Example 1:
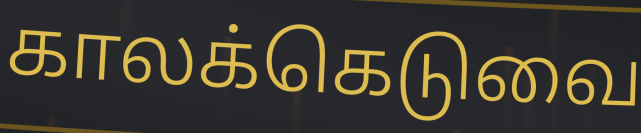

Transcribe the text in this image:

காலக்கெடுவை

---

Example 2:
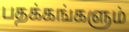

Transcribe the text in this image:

பதக்கங்களும்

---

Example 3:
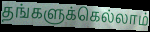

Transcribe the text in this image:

தங்களுக்கெல்லாம்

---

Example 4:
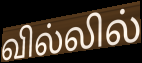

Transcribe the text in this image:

வில்லில்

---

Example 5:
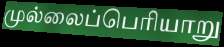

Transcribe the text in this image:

முல்லைப்பெரியாறு